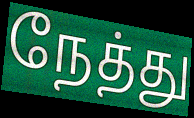
நேத்து